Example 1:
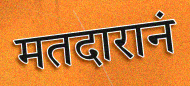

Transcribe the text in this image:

मतदारानं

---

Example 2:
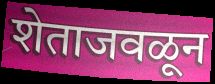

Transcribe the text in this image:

शेताजवळून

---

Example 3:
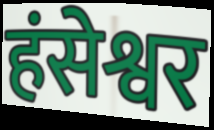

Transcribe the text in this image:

हंसेश्वर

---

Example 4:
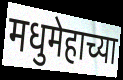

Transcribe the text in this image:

मधुमेहाच्या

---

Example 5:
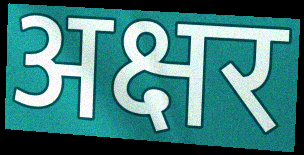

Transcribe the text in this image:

अक्षर